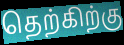
தெற்கிற்கு